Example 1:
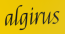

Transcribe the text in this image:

algirus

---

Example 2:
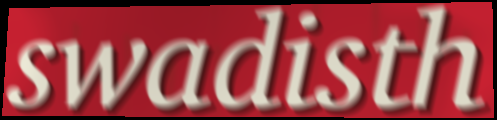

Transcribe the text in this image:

swadisth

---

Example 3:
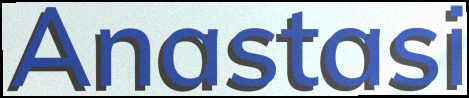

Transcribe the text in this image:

Anastasi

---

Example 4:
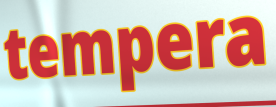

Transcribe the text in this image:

tempera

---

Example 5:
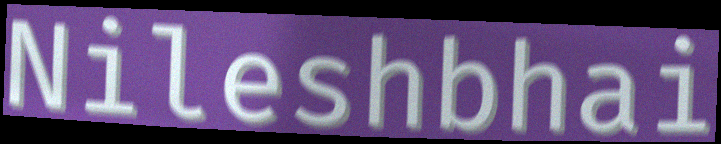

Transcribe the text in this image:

Nileshbhai